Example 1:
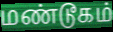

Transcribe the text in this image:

மண்டூகம்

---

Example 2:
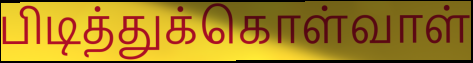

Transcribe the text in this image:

பிடித்துக்கொள்வாள்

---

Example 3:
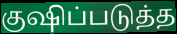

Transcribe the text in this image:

குஷிப்படுத்த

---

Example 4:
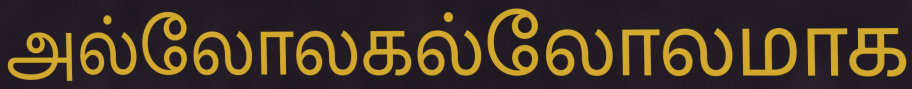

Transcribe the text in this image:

அல்லோலகல்லோலமாக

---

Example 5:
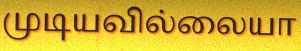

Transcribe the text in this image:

முடியவில்லையா